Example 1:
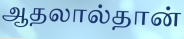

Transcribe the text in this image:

ஆதலால்தான்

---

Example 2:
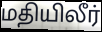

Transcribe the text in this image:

மதியிலீர்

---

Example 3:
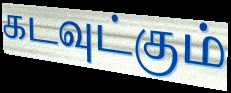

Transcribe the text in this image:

கடவுட்கும்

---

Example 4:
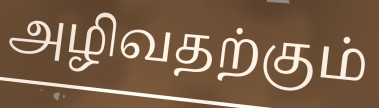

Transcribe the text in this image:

அழிவதற்கும்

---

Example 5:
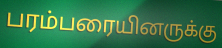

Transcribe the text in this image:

பரம்பரையினருக்கு